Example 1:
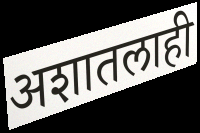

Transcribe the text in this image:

अशातलाही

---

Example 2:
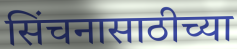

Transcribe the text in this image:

सिंचनासाठीच्या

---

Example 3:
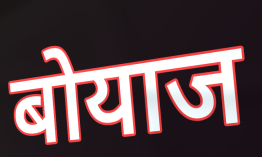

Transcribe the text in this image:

बोयाज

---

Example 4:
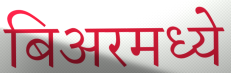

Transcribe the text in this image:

बिअरमध्ये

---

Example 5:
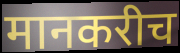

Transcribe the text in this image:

मानकरीच